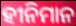
ହୀନିମାନ